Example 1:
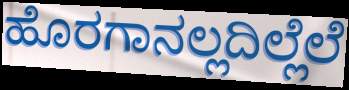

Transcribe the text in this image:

ಹೊರಗಾನಲ್ಲದಿಲ್ಲೆಲೆ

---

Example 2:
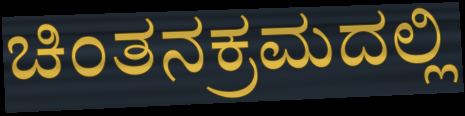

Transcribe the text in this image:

ಚಿಂತನಕ್ರಮದಲ್ಲಿ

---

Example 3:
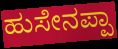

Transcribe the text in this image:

ಹುಸೇನಪ್ಪಾ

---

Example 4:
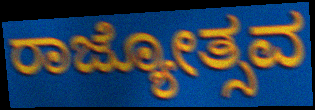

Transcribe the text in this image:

ರಾಜ್ಯೋತ್ಸವ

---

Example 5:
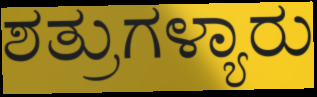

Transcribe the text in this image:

ಶತ್ರುಗಳ್ಯಾರು